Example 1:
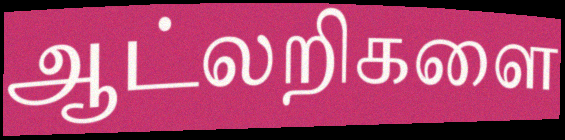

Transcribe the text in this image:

ஆட்லறிகளை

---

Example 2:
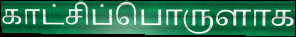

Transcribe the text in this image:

காட்சிப்பொருளாக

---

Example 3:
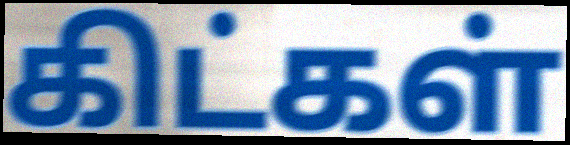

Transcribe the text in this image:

கிட்கள்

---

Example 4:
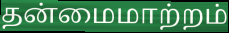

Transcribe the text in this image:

தன்மைமாற்றம்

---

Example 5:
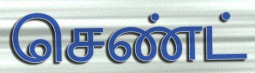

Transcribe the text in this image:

செண்ட்